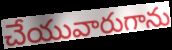
చేయువారుగాను